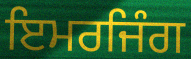
ਇਮਰਜਿੰਗ